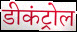
डीकंट्रोल